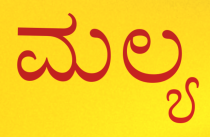
ಮಲ್ಯ